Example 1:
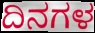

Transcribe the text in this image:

ದಿನಗಳ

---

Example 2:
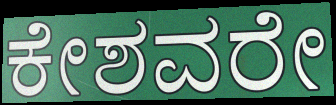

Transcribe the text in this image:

ಕೇಶವರೇ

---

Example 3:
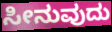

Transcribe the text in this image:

ಸೀನುವುದು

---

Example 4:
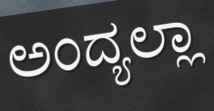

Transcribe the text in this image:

ಅಂದ್ಯಲ್ಲಾ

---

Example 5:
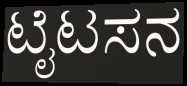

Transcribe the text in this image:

ಟೈಟಸನ